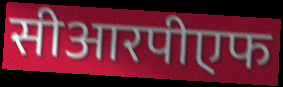
सीआरपीएफ